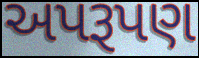
અપરૂપણ